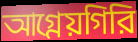
আগ্নেয়গিরি